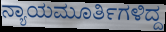
ನ್ಯಾಯಮೂರ್ತಿಗಳಿದ್ದ